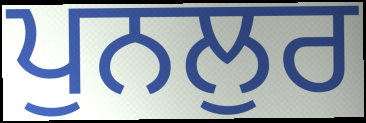
ਪੁਨਲੁਰ